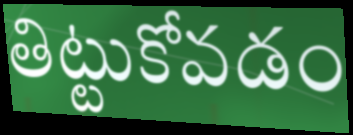
తిట్టుకోవడం